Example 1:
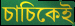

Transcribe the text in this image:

চাচিকেই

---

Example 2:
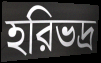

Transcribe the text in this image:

হরিভদ্র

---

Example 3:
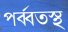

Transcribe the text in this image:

পর্ব্বতস্থ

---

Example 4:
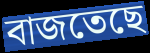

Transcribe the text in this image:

বাজতেছে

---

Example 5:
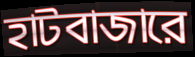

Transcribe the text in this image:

হাটবাজারে